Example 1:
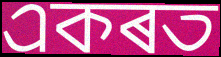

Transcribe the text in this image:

একৰত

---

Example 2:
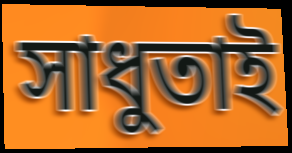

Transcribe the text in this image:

সাধুতাই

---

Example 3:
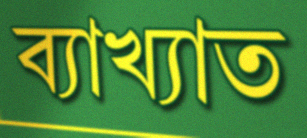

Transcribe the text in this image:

ব্যাখ্যাত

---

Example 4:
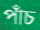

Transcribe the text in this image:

পাঁচ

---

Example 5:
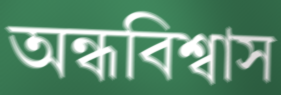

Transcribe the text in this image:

অন্ধবিশ্বাস